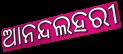
ଆନନ୍ଦଲହରୀ